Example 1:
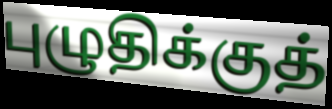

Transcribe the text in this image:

புழுதிக்குத்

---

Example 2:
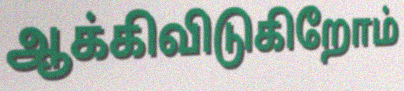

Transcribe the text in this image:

ஆக்கிவிடுகிறோம்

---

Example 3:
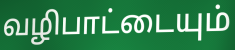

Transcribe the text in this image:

வழிபாட்டையும்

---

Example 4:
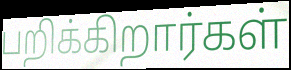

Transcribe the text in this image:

பறிக்கிறார்கள்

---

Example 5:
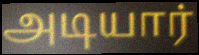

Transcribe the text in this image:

அடியார்